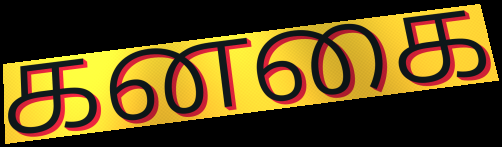
கனகை